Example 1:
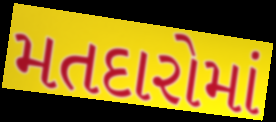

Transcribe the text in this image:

મતદારોમાં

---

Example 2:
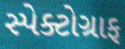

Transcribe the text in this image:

સ્પેક્ટોગ્રાફ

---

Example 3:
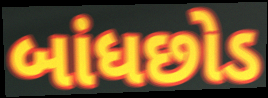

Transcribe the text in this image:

બાંધછોડ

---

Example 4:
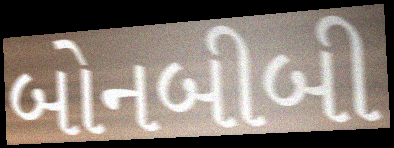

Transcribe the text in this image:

બોનબીબી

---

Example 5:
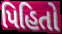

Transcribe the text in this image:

પિહિતો